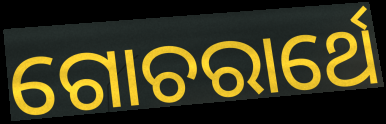
ଗୋଚରାର୍ଥେ